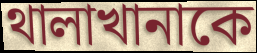
থালাখানাকে